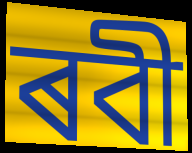
ৰবী